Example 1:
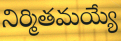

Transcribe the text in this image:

నిర్మితమయ్యే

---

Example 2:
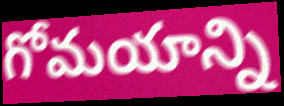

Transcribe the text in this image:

గోమయాన్ని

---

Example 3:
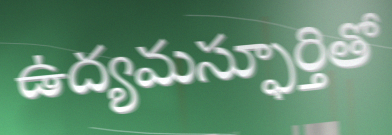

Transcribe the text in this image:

ఉద్యమస్ఫూర్తితో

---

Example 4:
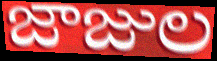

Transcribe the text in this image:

జాజుల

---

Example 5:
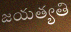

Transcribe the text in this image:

జయత్యతి